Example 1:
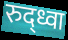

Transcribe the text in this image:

रुद्ध्वा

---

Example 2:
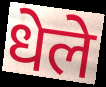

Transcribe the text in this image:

धेले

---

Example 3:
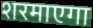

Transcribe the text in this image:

शरमाएगा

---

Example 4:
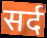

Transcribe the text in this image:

सर्द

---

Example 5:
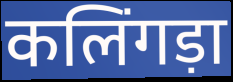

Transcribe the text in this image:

कलिंगड़ा